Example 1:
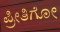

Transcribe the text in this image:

ಪ್ರೀತಿಗೋ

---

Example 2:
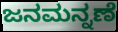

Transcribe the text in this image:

ಜನಮನ್ನಣೆ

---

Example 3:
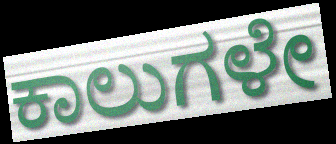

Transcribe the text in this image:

ಕಾಲುಗಳೇ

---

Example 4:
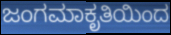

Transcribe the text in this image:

ಜಂಗಮಾಕೃತಿಯಿಂದ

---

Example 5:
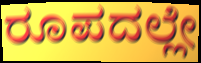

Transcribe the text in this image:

ರೂಪದಲ್ಲೇ